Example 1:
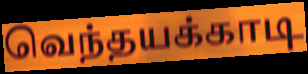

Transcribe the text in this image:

வெந்தயக்காடி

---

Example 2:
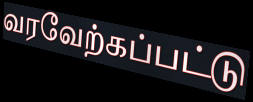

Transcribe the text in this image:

வரவேற்கப்பட்டு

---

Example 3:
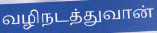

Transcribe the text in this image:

வழிநடத்துவான்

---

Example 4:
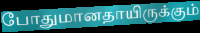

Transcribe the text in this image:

போதுமானதாயிருக்கும்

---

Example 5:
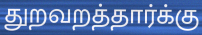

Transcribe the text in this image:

துறவறத்தார்க்கு